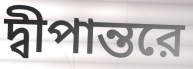
দ্বীপান্তরে